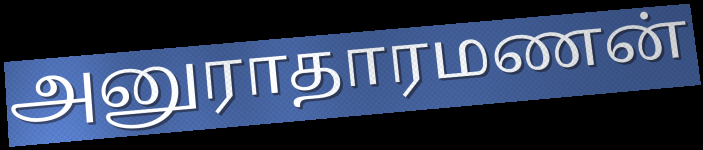
அனுராதாரமணன்